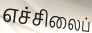
எச்சிலைப்